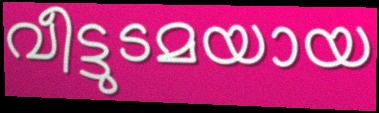
വീട്ടുടമയായ